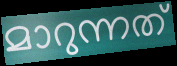
മാറുന്നത്